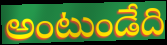
అంటుండేది